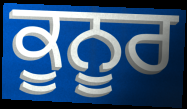
ਕੂਨੂਰ